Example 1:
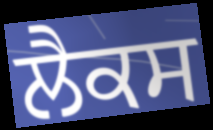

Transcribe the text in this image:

ਲੈਕਸ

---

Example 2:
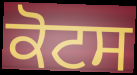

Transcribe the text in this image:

ਕੋਟਸ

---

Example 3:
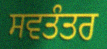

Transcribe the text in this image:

ਸਵਤੰਤਰ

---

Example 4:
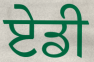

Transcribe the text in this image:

ਏਡੀ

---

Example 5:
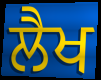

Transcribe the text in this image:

ਲੈਖ